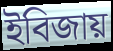
ইবিজায়